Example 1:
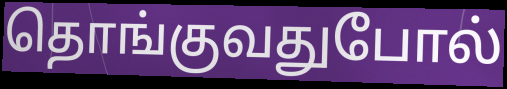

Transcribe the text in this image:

தொங்குவதுபோல்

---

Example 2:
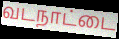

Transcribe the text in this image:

வடநாட்டை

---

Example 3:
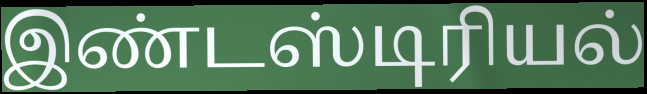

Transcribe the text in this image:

இண்டஸ்டிரியல்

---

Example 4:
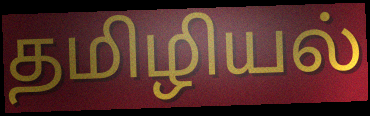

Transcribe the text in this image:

தமிழியல்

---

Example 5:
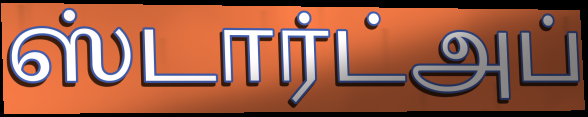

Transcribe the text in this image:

ஸ்டார்ட்அப்